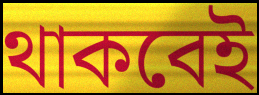
থাকবেই